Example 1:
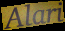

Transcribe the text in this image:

Alari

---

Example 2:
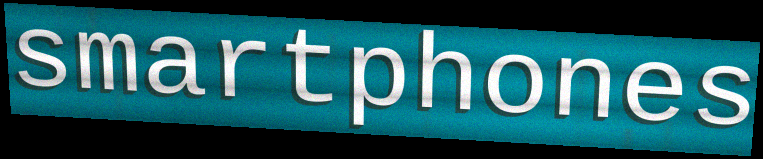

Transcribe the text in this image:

smartphones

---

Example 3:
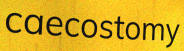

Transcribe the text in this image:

caecostomy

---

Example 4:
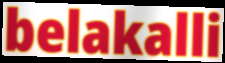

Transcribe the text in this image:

belakalli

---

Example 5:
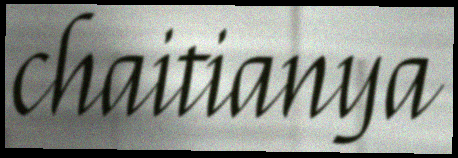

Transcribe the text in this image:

chaitianya